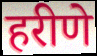
हरीणे